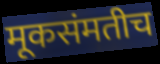
मूकसंमतीच